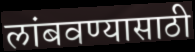
लांबवण्यासाठी